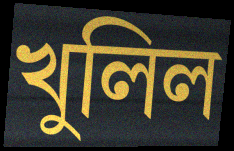
খুলিল